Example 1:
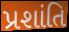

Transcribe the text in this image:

પ્રશાંતિ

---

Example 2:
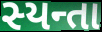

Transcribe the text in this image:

સ્યન્તા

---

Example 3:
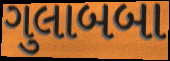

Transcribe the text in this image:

ગુલાબબા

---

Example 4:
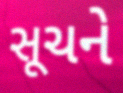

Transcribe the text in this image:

સૂચને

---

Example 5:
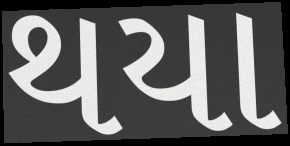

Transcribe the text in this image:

થયા